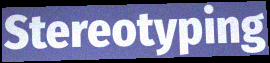
Stereotyping